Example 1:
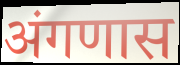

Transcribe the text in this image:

अंगणास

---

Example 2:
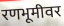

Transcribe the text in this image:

रणभूमीवर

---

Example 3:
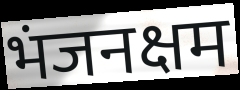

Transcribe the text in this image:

भंजनक्षम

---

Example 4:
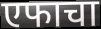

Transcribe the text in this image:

एफाचा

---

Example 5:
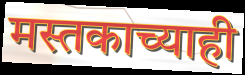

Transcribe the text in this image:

मस्तकाच्याही